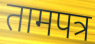
तामपत्र